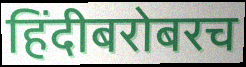
हिंदीबरोबरच